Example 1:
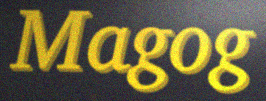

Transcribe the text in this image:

Magog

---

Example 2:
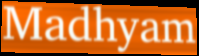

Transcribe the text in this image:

Madhyam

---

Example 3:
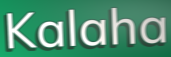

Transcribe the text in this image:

Kalaha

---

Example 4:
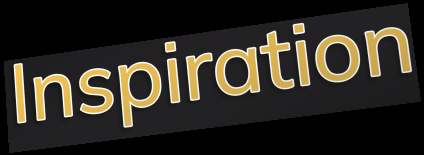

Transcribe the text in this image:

Inspiration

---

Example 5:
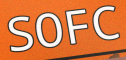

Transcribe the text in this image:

SOFC